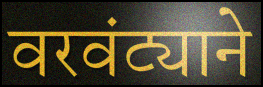
वरवंट्याने